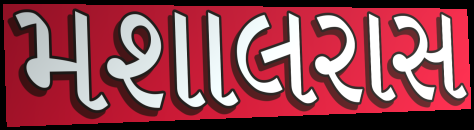
મશાલરાસ